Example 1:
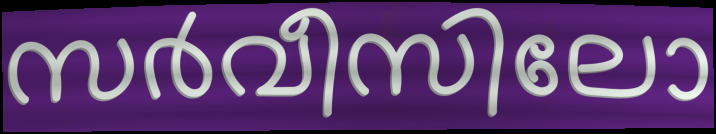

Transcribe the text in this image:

സർവീസിലോ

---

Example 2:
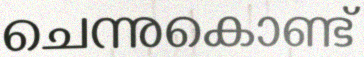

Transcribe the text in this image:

ചെന്നുകൊണ്ട്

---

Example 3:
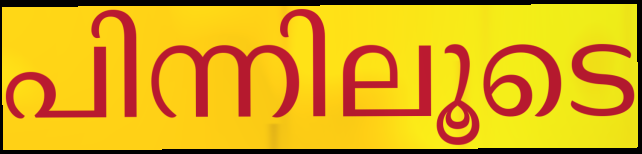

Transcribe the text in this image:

പിന്നിലൂടെ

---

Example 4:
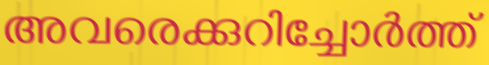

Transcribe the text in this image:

അവരെക്കുറിച്ചോർത്ത്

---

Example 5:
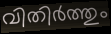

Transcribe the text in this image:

വിതിർത്തും